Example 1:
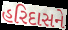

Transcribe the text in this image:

હરિદાસને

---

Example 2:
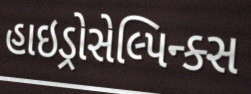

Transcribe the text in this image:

હાઇડ્રોસેલ્પિન્ક્સ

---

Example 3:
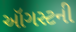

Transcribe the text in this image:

ઑગસ્ટની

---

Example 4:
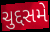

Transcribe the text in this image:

ચુદ્દસમે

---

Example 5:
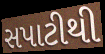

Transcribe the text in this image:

સપાટીથી